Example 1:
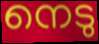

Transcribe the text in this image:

നെടു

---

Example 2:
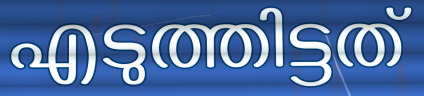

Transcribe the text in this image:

എടുത്തിട്ടത്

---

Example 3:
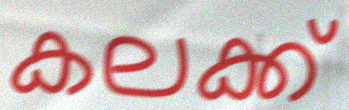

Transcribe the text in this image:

കലക്ക്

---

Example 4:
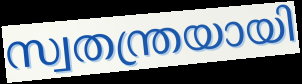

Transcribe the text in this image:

സ്വതന്ത്രയായി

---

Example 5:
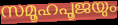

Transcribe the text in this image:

സമൂഹപൂജയും